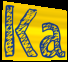
Ka